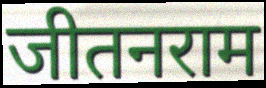
जीतनराम